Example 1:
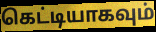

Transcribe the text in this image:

கெட்டியாகவும்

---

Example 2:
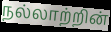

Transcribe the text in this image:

நல்லாற்றின்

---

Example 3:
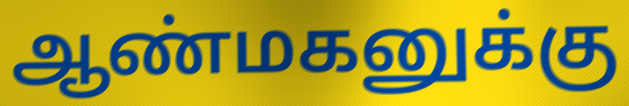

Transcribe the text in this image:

ஆண்மகனுக்கு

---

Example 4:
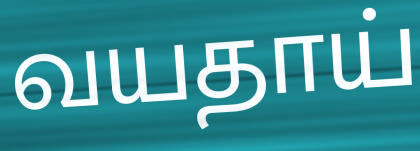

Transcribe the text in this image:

வயதாய்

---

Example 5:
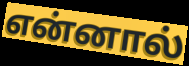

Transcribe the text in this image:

என்னால்